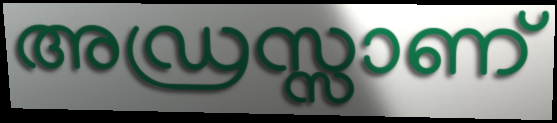
അഡ്രസ്സാണ്